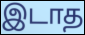
இடாத